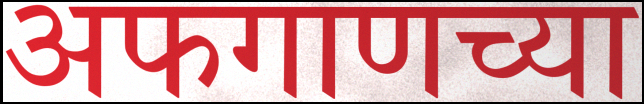
अफगाणच्या